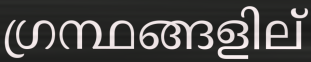
ഗ്രന്ഥങ്ങളില്